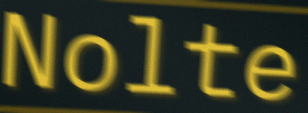
Nolte